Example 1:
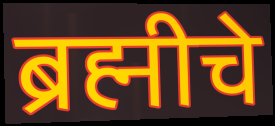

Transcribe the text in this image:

ब्रह्मीचे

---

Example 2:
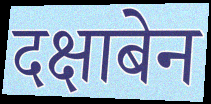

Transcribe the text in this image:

दक्षाबेन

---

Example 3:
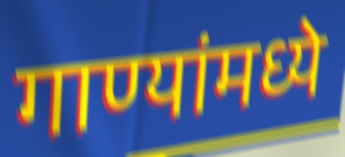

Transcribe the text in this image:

गाण्यांमध्ये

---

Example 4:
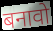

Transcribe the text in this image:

बनावो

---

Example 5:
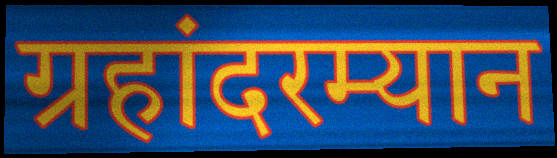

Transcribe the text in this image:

ग्रहांदरम्यान